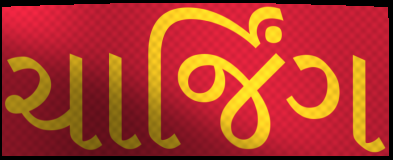
ચાર્જિંગ